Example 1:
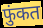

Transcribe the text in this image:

फुंकत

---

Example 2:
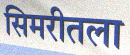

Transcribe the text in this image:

सिमरीतला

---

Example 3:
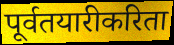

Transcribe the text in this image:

पूर्वतयारीकरिता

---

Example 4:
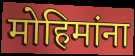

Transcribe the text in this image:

मोहिमांना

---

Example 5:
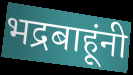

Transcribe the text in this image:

भद्रबाहूंनी